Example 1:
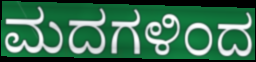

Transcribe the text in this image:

ಮದಗಳಿಂದ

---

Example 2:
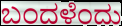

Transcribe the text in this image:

ಬಂದಳೆಂದು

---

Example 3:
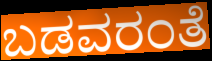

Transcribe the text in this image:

ಬಡವರಂತೆ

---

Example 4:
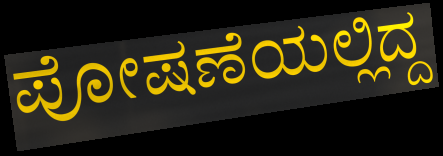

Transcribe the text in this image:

ಪೋಷಣೆಯಲ್ಲಿದ್ದ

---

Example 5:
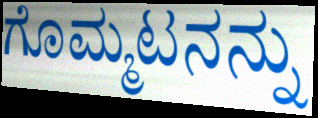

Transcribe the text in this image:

ಗೊಮ್ಮಟನನ್ನು